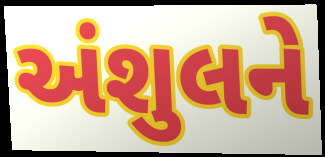
અંશુલને